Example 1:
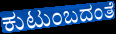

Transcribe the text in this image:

ಕುಟುಂಬದಂತೆ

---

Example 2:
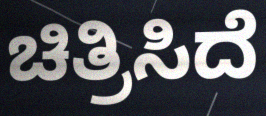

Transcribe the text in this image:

ಚಿತ್ರಿಸಿದೆ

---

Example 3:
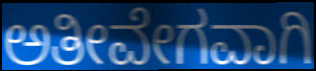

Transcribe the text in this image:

ಅತೀವೇಗವಾಗಿ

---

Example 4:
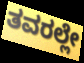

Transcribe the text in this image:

ತವರಲ್ಲೇ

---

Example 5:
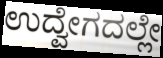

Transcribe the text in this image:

ಉದ್ವೇಗದಲ್ಲೇ